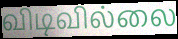
விடிவில்லை